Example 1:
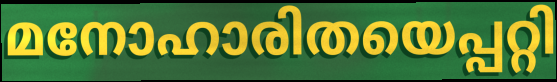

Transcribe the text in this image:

മനോഹാരിതയെപ്പറ്റി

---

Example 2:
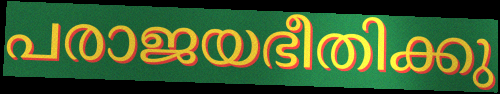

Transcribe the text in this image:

പരാജയഭീതിക്കു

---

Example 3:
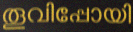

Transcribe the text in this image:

തൂവിപ്പോയി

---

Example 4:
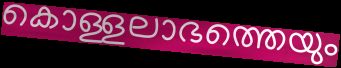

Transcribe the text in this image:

കൊള്ളലാഭത്തെയും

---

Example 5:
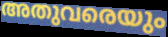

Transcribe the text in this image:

അതുവരെയും